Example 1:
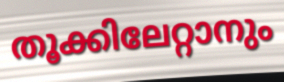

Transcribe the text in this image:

തൂക്കിലേറ്റാനും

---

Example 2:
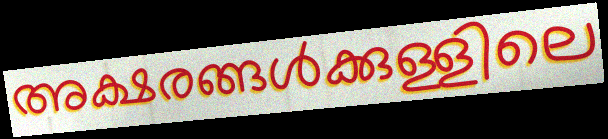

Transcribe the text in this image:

അക്ഷരങ്ങൾക്കുള്ളിലെ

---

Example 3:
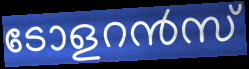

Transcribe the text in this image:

ടോളറൻസ്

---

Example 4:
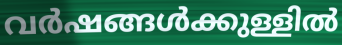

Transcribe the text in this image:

വർഷങ്ങൾക്കുള്ളിൽ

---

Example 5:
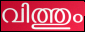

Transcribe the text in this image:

വിത്തും